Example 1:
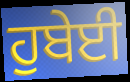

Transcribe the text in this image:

ਹੁਬੇਈ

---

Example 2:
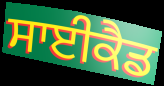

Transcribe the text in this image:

ਸਾਈਕੈਡ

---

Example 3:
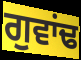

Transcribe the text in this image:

ਗੁਵਾਂਢ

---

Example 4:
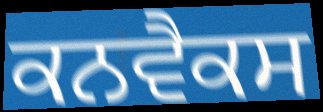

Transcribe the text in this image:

ਕਨਵੈਕਸ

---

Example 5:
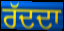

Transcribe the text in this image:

ਰੱਦਦਾ